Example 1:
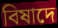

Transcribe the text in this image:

বিষাদে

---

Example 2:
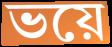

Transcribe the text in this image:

ভয়ে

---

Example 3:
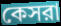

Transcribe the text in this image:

কেসরা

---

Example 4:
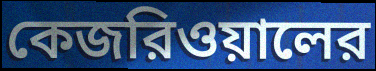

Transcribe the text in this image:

কেজরিওয়ালের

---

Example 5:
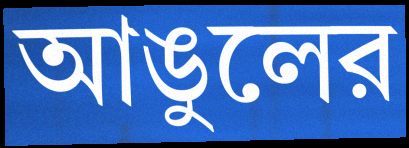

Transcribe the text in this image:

আঙুলের